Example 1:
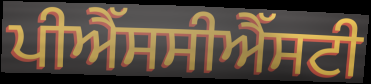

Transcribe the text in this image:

ਪੀਐੱਸਸੀਐੱਸਟੀ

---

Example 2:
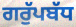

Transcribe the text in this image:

ਗਰੁੱਪਬੱਧ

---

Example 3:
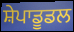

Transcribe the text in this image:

ਸ਼ੇਪਾਡੂਡਲ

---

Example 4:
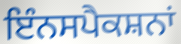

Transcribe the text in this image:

ਇੰਨਸਪੈਕਸ਼ਨਾਂ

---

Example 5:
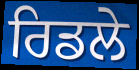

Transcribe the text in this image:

ਰਿਡਲੇ